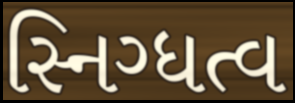
સ્નિગ્ધત્વ